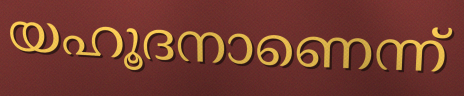
യഹൂദനാണെന്ന്